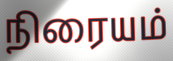
நிரையம்